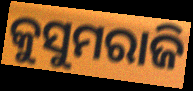
କୁସୁମରାଜି